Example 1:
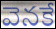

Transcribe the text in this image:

వెనకే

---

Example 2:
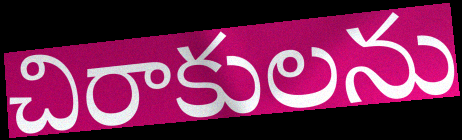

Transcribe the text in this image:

చిరాకులను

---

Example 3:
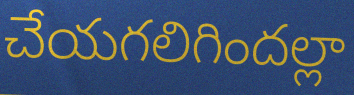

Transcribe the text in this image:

చేయగలిగిందల్లా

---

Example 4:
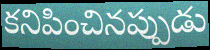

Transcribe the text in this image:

కనిపించినప్పుడు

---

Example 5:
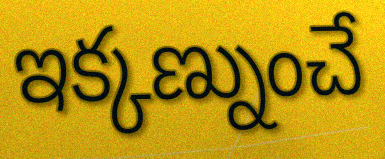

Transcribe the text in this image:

ఇక్కణ్నుంచే